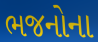
ભજનોના